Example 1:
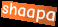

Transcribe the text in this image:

shaapa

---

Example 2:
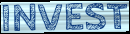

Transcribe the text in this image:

INVEST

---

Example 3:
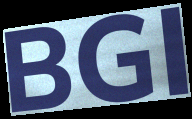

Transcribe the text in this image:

BGI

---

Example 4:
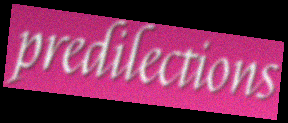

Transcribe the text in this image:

predilections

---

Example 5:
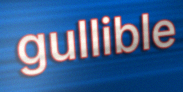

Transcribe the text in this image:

gullible